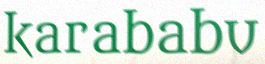
karababu